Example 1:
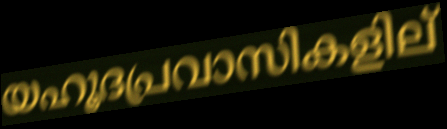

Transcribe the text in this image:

യഹൂദപ്രവാസികളില്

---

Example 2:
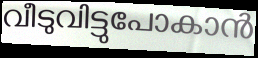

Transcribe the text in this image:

വീടുവിട്ടുപോകാൻ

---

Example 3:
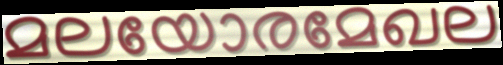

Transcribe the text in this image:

മലയോരമേഖല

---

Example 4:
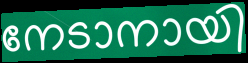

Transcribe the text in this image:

നേടാനായി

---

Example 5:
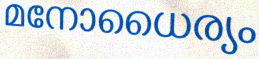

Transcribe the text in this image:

മനോധൈര്യം